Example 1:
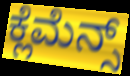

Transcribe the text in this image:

ಕ್ಲೆಮೆನ್ಸ್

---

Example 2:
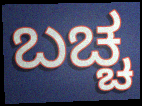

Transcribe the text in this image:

ಬಚ್ಚ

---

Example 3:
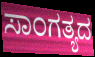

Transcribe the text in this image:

ಸಾಂಗತ್ಯದ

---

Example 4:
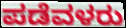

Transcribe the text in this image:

ಪಡೆವಳರು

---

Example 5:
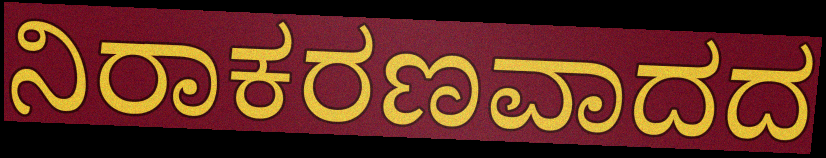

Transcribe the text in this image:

ನಿರಾಕರಣವಾದದ